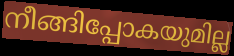
നീങ്ങിപ്പോകയുമില്ല